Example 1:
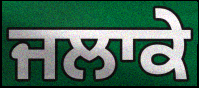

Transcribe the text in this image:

ਜਲਾਕੇ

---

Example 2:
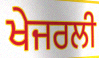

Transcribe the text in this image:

ਖੇਜਰਲੀ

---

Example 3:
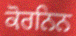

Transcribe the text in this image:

ਕੋਰਨਿਨ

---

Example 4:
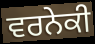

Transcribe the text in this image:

ਵਰਨੇਕੀ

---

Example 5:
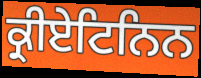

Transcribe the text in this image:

ਕ੍ਰੀਏਟਿਨਿਨ